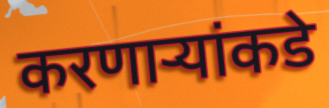
करणाऱ्यांकडे